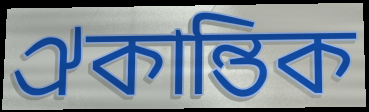
ঐকান্তিক